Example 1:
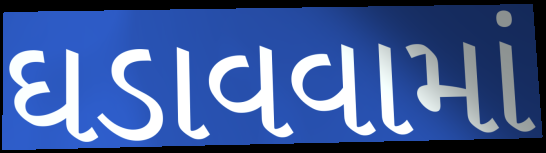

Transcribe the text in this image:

ઘડાવવામાં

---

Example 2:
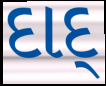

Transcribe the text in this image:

દાદ્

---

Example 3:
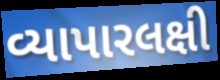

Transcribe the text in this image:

વ્યાપારલક્ષી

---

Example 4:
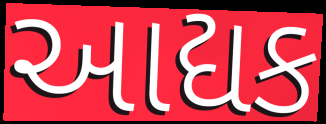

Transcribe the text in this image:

આદ્યક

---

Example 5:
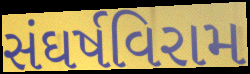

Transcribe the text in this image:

સંઘર્ષવિરામ